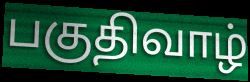
பகுதிவாழ்